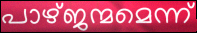
പാഴ്ജന്മമെന്ന്